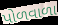
પોળવાળા